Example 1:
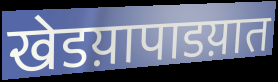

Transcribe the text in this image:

खेडय़ापाडय़ात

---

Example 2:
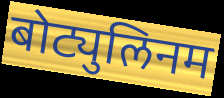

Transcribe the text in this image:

बोट्युलिनम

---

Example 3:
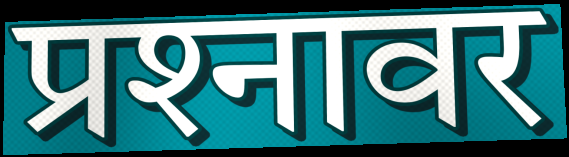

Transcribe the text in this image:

प्रश्‍नावर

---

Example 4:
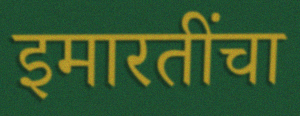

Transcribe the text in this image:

इमारतींचा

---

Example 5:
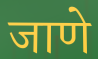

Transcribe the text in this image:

जाणे